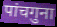
पांचगुना